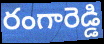
రంగారెడ్డి